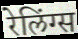
रेलिंग्स